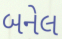
બનેલ